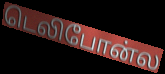
டெலிபோன்ல